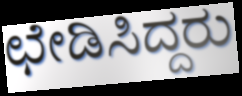
ಛೇಡಿಸಿದ್ದರು